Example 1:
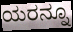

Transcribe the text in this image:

ಯರನ್ನೂ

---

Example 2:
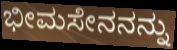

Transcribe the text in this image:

ಭೀಮಸೇನನನ್ನು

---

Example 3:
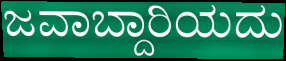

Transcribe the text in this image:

ಜವಾಬ್ದಾರಿಯದು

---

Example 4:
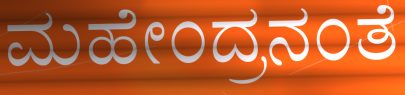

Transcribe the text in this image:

ಮಹೇಂದ್ರನಂತೆ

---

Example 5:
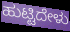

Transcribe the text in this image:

ಹುಟ್ಟಿದೇಳು